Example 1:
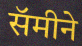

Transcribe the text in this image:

सॅमीने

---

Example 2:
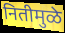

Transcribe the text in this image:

नितीमुळे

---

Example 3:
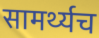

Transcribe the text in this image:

सामर्थ्यच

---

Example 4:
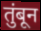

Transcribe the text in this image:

तुंबून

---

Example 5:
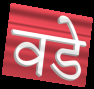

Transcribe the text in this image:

वडे